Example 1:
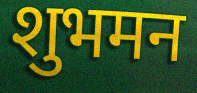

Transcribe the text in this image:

शुभमन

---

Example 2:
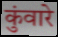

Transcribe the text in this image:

कुंवारे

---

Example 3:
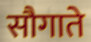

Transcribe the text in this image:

सौगाते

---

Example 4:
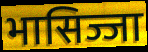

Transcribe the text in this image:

भासिज्जा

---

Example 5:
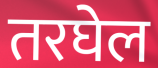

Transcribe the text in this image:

तरघेल